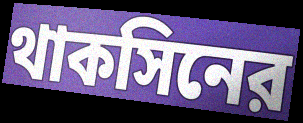
থাকসিনের